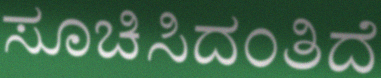
ಸೂಚಿಸಿದಂತಿದೆ